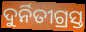
ଦୁର୍ନିତୀଗ୍ରସ୍ତ